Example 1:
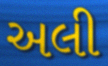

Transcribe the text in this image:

અલી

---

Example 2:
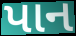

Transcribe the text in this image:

પાન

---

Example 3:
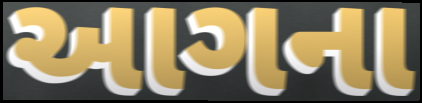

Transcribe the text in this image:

આગના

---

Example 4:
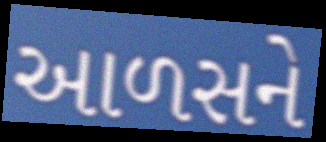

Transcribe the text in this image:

આળસને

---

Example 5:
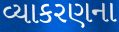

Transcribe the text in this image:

વ્યાકરણના